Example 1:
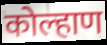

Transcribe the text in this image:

कोल्हाण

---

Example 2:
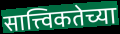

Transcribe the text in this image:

सात्त्विकतेच्या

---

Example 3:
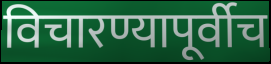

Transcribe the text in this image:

विचारण्यापूर्वीच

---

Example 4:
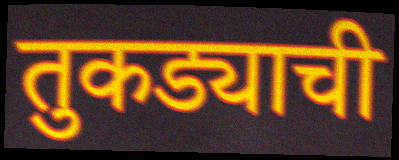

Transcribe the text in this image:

तुकड्याची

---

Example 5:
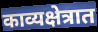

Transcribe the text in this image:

काव्यक्षेत्रात